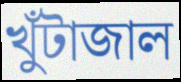
খুঁটাজাল